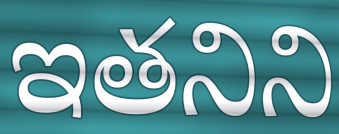
ఇతనిని